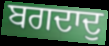
ਬਗਦਾਦੁ